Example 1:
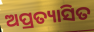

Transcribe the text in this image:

ଅପ୍ରତ୍ୟାସିତ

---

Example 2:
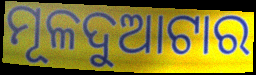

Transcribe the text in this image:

ମୂଳଦୁଆଟାର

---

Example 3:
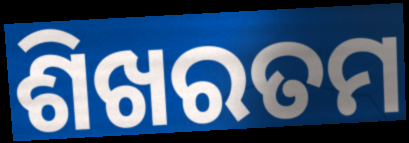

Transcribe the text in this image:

ଶିଖରତମ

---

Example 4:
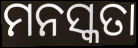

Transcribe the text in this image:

ମନସ୍କତା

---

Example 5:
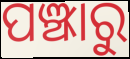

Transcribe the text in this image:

ପଞ୍ଝାରୁ